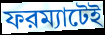
ফরম্যাটেই